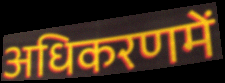
अधिकरणमें